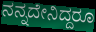
ನನ್ನದೇನಿದ್ದರೂ